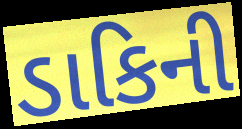
ડાકિની